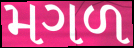
મગળ